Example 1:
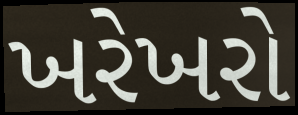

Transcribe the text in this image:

ખરેખરો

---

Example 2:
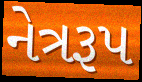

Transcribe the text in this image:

નેત્રરૂપ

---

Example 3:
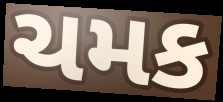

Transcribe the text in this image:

ચમક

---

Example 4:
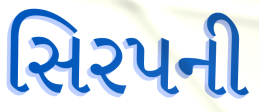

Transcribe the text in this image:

સિરપની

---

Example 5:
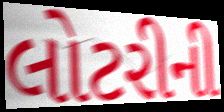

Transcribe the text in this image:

લોટરીની